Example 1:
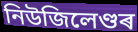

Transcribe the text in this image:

নিউজিলেণ্ডৰ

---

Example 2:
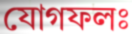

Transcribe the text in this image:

যোগফলঃ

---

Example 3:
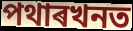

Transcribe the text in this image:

পথাৰখনত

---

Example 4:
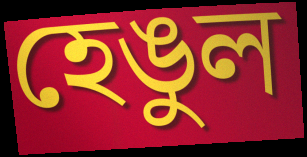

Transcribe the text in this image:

হেঙুল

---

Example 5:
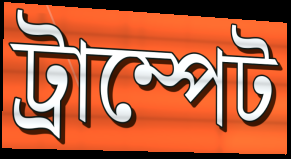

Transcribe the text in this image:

ট্ৰাম্পেট